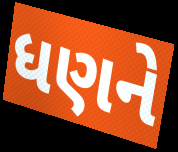
ધણને